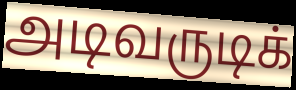
அடிவருடிக்